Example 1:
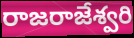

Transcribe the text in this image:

రాజరాజేశ్వరి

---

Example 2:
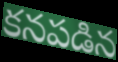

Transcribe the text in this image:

కనపడిన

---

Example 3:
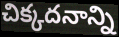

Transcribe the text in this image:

చిక్కదనాన్ని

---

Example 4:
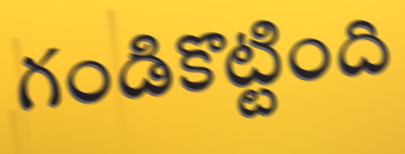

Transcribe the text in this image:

గండికొట్టింది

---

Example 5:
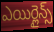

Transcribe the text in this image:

ఎయిర్లైన్స్